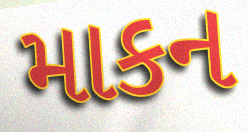
માકન